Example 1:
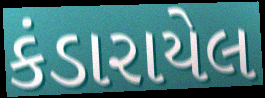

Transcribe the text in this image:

કંડારાયેલ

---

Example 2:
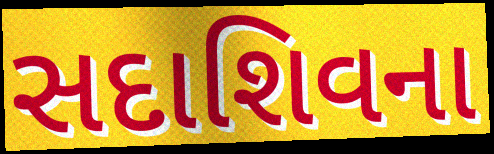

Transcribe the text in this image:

સદાશિવના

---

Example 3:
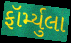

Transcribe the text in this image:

ફૉર્મ્યુલા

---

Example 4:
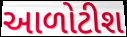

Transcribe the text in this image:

આળોટીશ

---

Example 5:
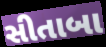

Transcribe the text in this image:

સીતાબા